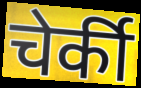
चेर्की